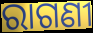
ରାଗଣୀ